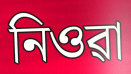
নিওৱা